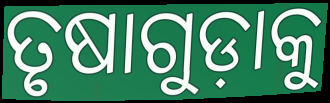
ତୃଷାଗୁଡ଼ାକୁ